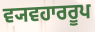
ਵ੍ਯਵਹਾਰਰੂਪ